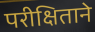
परीक्षिताने